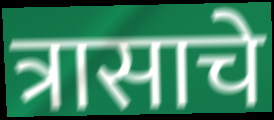
त्रासाचे